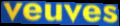
veuves